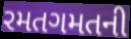
રમતગમતની